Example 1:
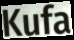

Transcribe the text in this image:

Kufa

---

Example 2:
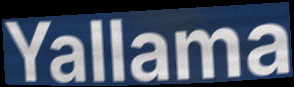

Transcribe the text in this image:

Yallama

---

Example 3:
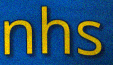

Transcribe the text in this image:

nhs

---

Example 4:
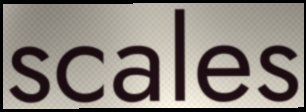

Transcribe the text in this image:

scales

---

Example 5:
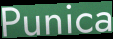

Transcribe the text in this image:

Punica